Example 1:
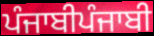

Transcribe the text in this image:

ਪੰਜਾਬੀਪੰਜਾਬੀ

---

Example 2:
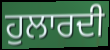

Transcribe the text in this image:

ਹੁਲਾਰਦੀ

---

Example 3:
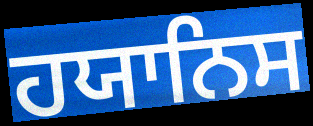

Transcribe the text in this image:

ਹਯਾਨਿਸ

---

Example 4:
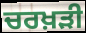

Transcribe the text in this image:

ਚਰਖ਼ੜੀ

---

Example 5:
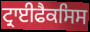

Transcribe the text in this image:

ਟ੍ਰਾਈਫੈਕਸਿਸ